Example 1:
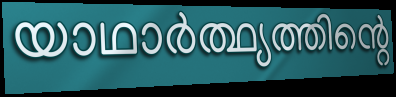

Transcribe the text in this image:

യാഥാർത്ഥ്യത്തിന്റെ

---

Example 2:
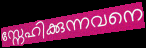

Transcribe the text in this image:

സ്നേഹിക്കുന്നവനെ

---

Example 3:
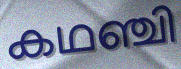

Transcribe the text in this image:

കഥഞ്ചി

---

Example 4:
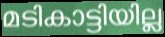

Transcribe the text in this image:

മടികാട്ടിയില്ല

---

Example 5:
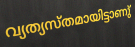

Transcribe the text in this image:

വ്യത്യസ്തമായിട്ടാണു്